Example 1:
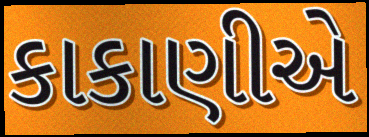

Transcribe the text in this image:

કાકાણીએ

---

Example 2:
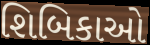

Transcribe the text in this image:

શિબિકાઓ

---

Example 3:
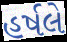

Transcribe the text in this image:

હર્ષલે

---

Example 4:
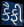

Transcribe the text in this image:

કૈફી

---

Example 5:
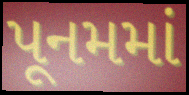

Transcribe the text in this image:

પૂનમમાં